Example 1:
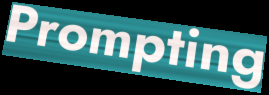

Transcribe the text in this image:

Prompting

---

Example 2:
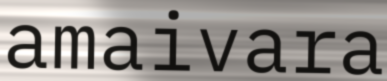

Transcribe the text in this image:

amaivara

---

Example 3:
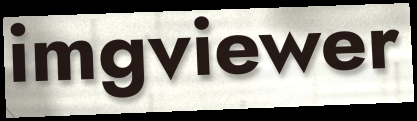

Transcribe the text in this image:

imgviewer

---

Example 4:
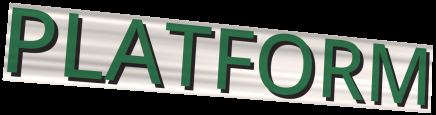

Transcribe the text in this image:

PLATFORM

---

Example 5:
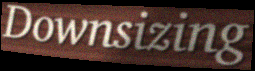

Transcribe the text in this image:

Downsizing